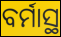
ବର୍ମାସ୍ଥ